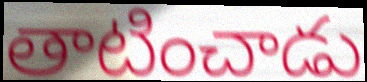
తాటించాడు